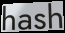
hash